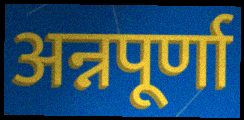
अन्नपूर्णा